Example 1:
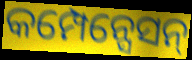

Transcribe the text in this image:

କମ୍ପେନ୍ସେସନ୍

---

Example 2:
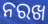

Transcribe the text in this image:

ନରଖ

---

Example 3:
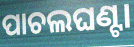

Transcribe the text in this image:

ପାଚଲଘଣ୍ଟା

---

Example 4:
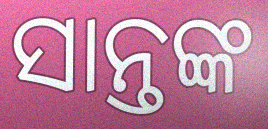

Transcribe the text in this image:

ସାନ୍ତଙ୍କ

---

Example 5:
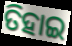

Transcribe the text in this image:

ତିହାଇ